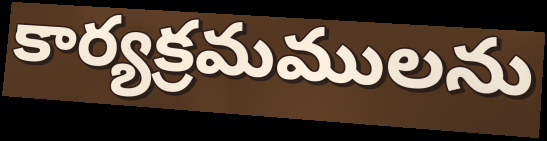
కార్యక్రమములను